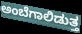
ಅಂಬೆಗಾಲಿಡುತ್ತ